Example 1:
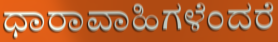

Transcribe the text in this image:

ಧಾರಾವಾಹಿಗಳೆಂದರೆ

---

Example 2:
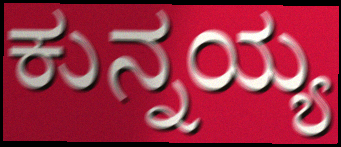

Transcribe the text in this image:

ಕುನ್ನಯ್ಯ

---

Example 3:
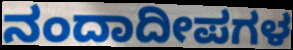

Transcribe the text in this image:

ನಂದಾದೀಪಗಳ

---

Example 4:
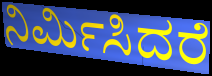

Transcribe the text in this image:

ನಿರ್ಮಿಸಿದರೆ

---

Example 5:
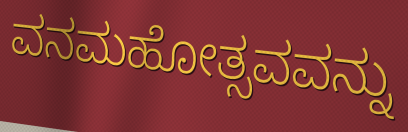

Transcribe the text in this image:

ವನಮಹೋತ್ಸವವನ್ನು